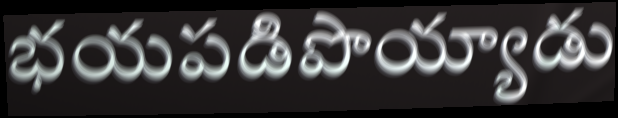
భయపడిపొయ్యాడు